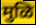
मुळि